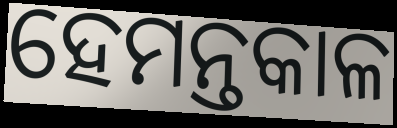
ହେମନ୍ତକାଳ